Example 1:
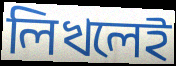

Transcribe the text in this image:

লিখলেই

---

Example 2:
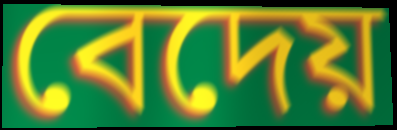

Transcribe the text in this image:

বেদেয়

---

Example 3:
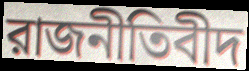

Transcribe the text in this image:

রাজনীতিবীদ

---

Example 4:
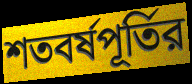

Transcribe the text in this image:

শতবর্ষপূর্তির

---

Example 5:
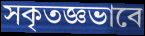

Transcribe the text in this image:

সকৃতজ্ঞভাবে